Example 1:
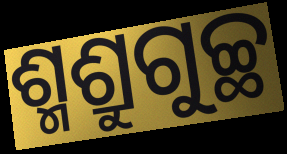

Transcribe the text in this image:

ଶ୍ମଶ୍ରୁଗୁଚ୍ଛ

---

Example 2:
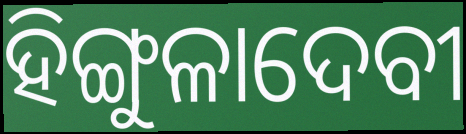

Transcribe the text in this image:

ହିଙ୍ଗୁଳାଦେବୀ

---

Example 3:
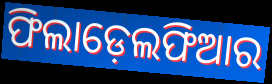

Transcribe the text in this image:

ଫିଲାଡ଼େଲଫିଆର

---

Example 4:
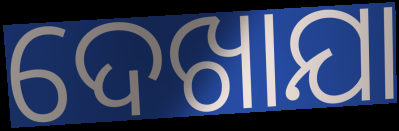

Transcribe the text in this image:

ଦେଖାଯା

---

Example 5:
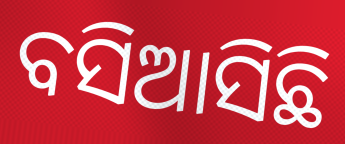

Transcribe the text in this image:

ବସିଆସିଛି